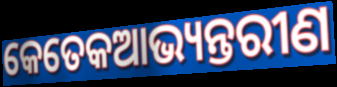
କେତେକଆଭ୍ୟନ୍ତରୀଣ